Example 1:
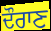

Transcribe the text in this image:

ਦੌਰਾਣ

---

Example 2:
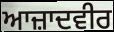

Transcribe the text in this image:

ਆਜ਼ਾਦਵੀਰ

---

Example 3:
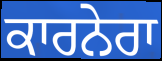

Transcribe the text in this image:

ਕਾਰਨੇਰਾ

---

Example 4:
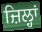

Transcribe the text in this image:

ਜ਼ਿਲ੍ਹਾਂ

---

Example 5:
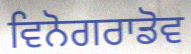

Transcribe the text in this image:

ਵਿਨੋਗਰਾਡੋਵ